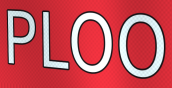
PLOO